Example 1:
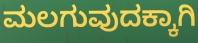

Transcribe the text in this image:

ಮಲಗುವುದಕ್ಕಾಗಿ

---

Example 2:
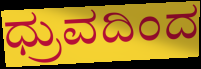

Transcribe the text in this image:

ಧ್ರುವದಿಂದ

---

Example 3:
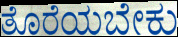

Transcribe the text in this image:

ತೊರೆಯಬೇಕು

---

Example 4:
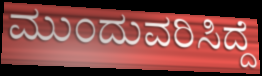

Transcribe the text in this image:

ಮುಂದುವರಿಸಿದ್ದೆ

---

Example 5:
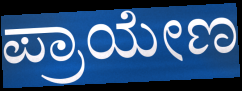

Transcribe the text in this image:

ಪ್ರಾಯೇಣ